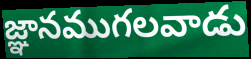
జ్ఞానముగలవాడు